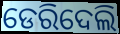
ଡେରିଦେଲି